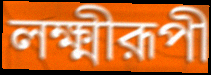
লক্ষ্মীরূপী